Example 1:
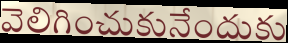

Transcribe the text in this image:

వెలిగించుకునేందుకు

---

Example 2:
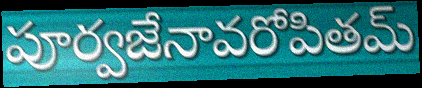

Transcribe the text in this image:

పూర్వజేనావరోపితమ్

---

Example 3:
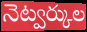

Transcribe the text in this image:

నెట్వర్కుల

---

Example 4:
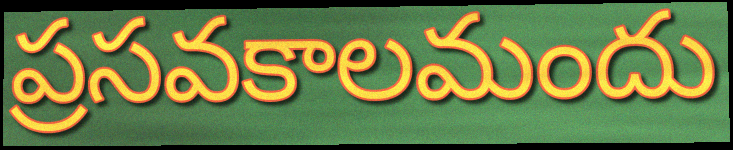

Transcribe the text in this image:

ప్రసవకాలమందు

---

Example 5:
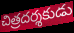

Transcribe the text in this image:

చిత్రదర్శకుడు